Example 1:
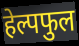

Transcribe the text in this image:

हेल्पफुल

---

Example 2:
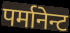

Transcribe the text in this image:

पर्मानेन्ट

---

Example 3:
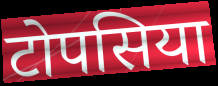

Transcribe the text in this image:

टोपसिया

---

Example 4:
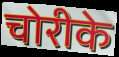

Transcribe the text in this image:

चोरीके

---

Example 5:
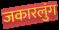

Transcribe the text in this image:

जकारलुंग